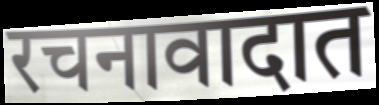
रचनावादात